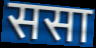
ससा